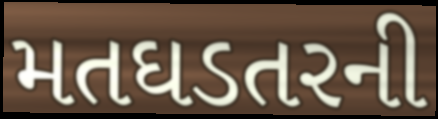
મતઘડતરની